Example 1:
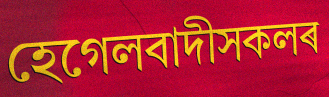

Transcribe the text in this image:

হেগেলবাদীসকলৰ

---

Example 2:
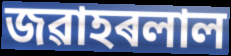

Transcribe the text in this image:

জৱাহৰলাল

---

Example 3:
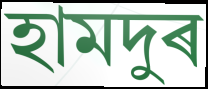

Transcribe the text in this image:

হামদুৰ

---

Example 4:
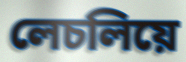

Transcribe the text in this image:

লেচলিয়ে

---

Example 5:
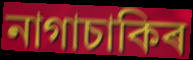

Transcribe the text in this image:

নাগাচাকিৰ